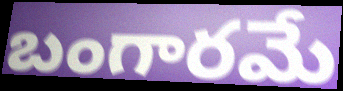
బంగారమే